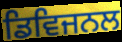
ਡਿਵਿਜਨਲ